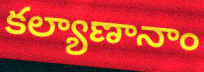
కల్యాణానాం